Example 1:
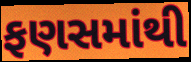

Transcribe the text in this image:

ફણસમાંથી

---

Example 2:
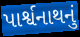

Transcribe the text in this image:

પાર્શ્વનાથનું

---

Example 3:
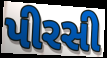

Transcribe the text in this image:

પીરસી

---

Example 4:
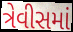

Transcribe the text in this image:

ત્રેવીસમાં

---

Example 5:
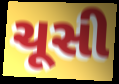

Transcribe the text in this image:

ચૂસી